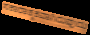
ಸಕಾರಾತ್ಮಕವಾಗಿರುವುದು